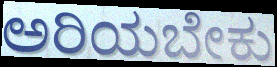
ಅರಿಯಬೇಕು